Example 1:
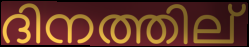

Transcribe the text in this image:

ദിനത്തില്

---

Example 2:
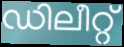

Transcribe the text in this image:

ഡിലീറ്റ്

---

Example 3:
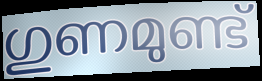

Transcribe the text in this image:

ഗുണമുണ്ട്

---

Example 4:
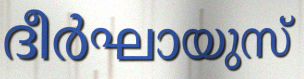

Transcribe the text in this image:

ദീർഘായുസ്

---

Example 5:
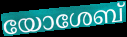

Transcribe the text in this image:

യോശേബ്